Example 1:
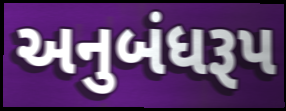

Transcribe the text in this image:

અનુબંધરૂપ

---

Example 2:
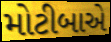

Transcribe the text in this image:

મોટીબાએ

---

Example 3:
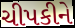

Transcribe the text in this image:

ચીપકીને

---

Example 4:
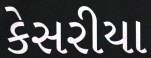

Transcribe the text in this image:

કેસરીયા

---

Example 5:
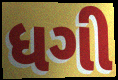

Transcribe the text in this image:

ધગી